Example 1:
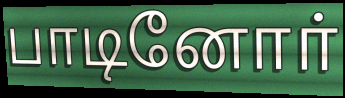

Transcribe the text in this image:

பாடினோர்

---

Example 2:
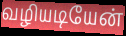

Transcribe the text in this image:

வழியடியேன்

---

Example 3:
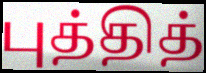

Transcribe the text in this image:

புத்தித்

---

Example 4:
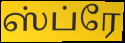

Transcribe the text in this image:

ஸ்ப்ரே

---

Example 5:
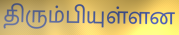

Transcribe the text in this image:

திரும்பியுள்ளன